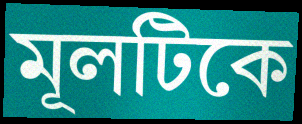
মূলটিকে